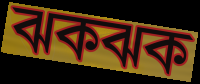
ঝকঝক